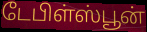
டேபிள்ஸ்பூன்